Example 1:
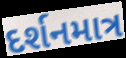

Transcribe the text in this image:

દર્શનમાત્ર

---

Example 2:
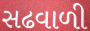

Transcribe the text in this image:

સઢવાળી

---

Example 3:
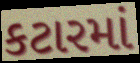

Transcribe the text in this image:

કટારમાં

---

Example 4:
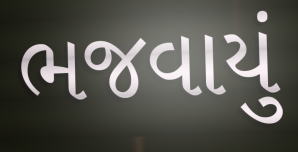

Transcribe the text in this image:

ભજવાયું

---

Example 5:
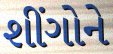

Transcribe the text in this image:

શીંગોને